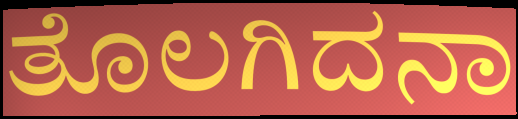
ತೊಲಗಿದನಾ